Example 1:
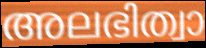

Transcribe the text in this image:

അലഭിത്വാ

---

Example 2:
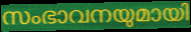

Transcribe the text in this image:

സംഭാവനയുമായി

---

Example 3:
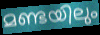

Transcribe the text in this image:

മണ്ടയിലും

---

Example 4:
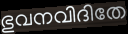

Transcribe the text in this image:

ഭുവനവിദിതേ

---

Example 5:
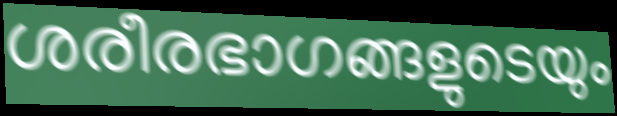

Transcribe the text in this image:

ശരീരഭാഗങ്ങളുടെയും